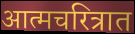
आत्मचरित्रात